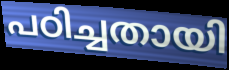
പഠിച്ചതായി